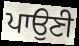
ਪਾਉਣੀ